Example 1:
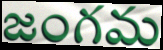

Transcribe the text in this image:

జంగమ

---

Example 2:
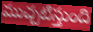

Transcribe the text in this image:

ముచ్చటిస్తుంది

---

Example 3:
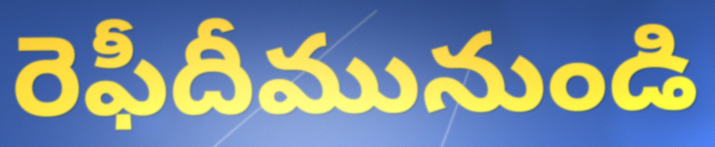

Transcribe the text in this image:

రెఫీదీమునుండి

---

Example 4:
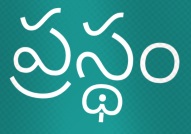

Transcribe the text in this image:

ప్రస్థం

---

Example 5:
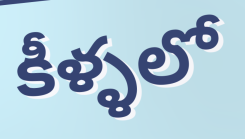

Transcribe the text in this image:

కీళ్ళలో